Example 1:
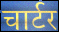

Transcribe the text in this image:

चार्टर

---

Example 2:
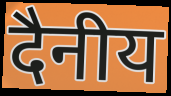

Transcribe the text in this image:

दैनीय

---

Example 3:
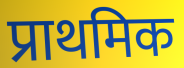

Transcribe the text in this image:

प्राथमिक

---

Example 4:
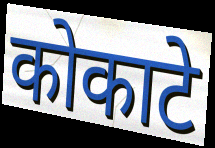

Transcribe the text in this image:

कोकाटे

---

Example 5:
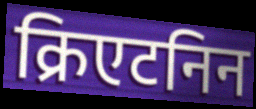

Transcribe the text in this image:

क्रिएटनिन